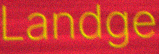
Landge